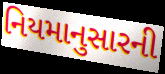
નિયમાનુસારની